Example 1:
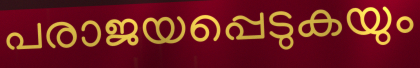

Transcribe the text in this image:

പരാജയപ്പെടുകയും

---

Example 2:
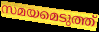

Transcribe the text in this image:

സമയമെടുത്ത്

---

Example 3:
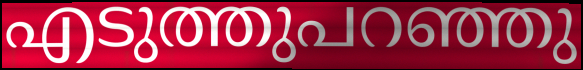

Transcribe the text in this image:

എടുത്തുപറഞ്ഞു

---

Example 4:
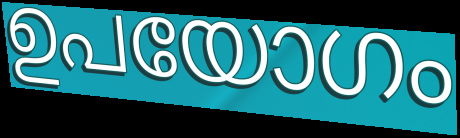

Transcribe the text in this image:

ഉപയോഗം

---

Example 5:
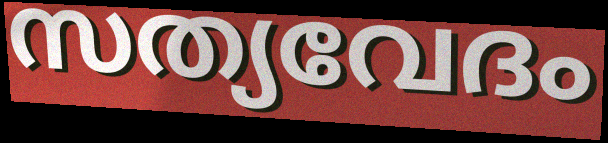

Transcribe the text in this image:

സത്യവേദം